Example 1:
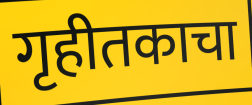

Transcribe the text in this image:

गृहीतकाचा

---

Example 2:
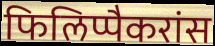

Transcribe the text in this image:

फिलिप्पैकरांस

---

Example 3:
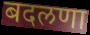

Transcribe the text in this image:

बदलणा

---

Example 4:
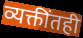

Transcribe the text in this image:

व्यक्तींतही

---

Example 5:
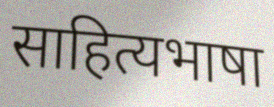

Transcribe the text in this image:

साहित्यभाषा